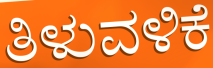
ತಿಳುವಳಿಕೆ